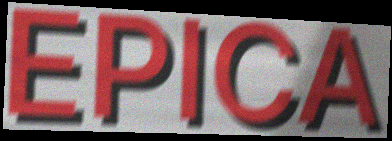
EPICA